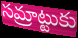
సమ్రాట్టుకు